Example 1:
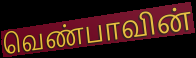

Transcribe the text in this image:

வெண்பாவின்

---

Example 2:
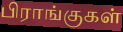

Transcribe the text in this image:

பிராங்குகள்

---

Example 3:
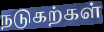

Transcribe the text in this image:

நடுகற்கள்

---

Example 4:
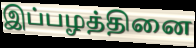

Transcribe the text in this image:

இப்பழத்தினை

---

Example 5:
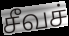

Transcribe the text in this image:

சீவச்